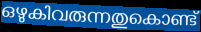
ഒഴുകിവരുന്നതുകൊണ്ട്